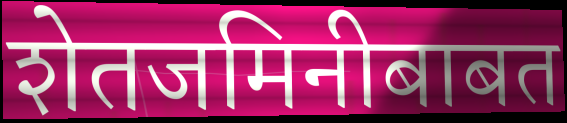
शेतजमिनीबाबत